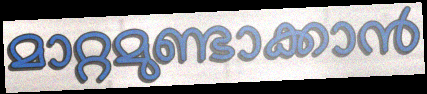
മാറ്റമുണ്ടാക്കാൻ